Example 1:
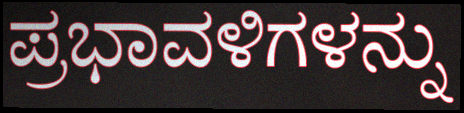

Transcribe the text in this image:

ಪ್ರಭಾವಳಿಗಳನ್ನು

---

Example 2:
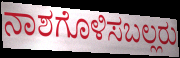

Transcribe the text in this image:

ನಾಶಗೊಳಿಸಬಲ್ಲರು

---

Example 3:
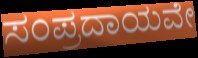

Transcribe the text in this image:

ಸಂಪ್ರದಾಯವೇ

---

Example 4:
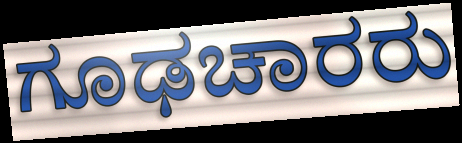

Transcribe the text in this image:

ಗೂಢಚಾರರು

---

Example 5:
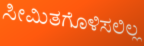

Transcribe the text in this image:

ಸೀಮಿತಗೊಳಿಸಲಿಲ್ಲ